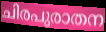
ചിരപുരാതന